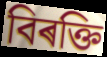
বিৰক্তি